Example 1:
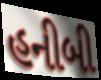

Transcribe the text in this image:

હનીબી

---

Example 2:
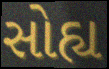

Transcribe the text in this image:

સોહ્ય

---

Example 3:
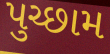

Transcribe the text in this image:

પુચ્છામ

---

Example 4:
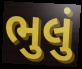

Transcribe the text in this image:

ભુલું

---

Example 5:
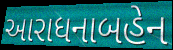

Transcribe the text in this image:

આરાધનાબહેન